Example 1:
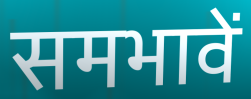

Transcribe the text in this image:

समभावें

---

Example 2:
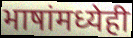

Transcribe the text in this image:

भाषांमध्येही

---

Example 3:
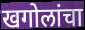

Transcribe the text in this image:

खगोलांचा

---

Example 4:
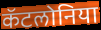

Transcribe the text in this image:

कॅटलोनिया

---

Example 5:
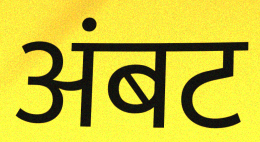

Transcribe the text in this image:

अंबट